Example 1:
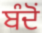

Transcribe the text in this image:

ਬੰਦੋਂ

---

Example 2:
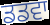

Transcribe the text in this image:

ਡਡਵਾ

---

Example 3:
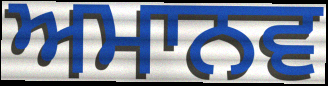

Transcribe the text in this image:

ਅਮਾਨਵ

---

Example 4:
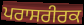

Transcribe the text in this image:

ਪਰਾਸਰੀਰਕ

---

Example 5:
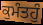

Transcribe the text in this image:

ਕੁਮੰਤਹੁੰ